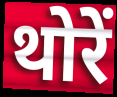
थोरें